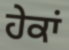
ਹੇਕਾਂ